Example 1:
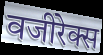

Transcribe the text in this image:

वजीरेक्स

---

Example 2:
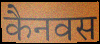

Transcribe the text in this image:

कैनवस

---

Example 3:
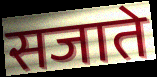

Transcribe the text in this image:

सजाते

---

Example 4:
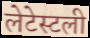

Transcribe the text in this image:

लेटेस्टली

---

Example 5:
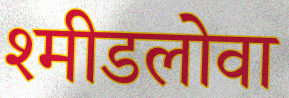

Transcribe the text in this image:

श्मीडलोवा